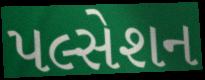
પલ્સેશન